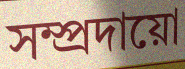
সম্প্ৰদায়ো